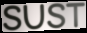
SUST